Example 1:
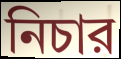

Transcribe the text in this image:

নিচার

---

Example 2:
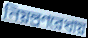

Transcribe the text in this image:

নিয়ন্ত্রণরেখায়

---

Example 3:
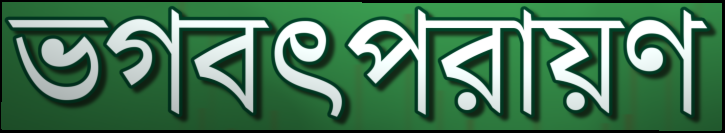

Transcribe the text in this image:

ভগবৎপরায়ণ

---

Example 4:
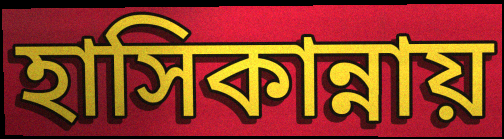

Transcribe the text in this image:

হাসিকান্নায়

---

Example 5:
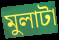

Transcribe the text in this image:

মুলাটা